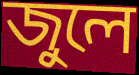
জুলে